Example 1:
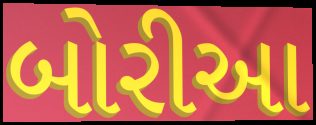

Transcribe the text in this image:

બોરીઆ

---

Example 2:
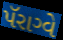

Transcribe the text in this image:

પૅરાગ્વે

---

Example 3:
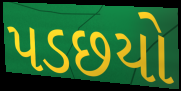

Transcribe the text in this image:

પડછયો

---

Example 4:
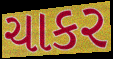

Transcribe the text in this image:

ચાકર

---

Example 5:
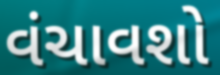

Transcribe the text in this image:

વંચાવશો